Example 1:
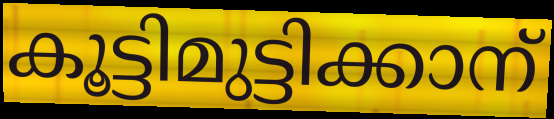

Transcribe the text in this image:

കൂട്ടിമുട്ടിക്കാന്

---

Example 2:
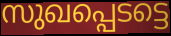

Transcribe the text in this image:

സുഖപ്പെടട്ടെ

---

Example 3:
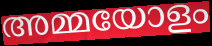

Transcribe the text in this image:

അമ്മയോളം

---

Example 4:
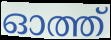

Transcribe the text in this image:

ഓത്ത്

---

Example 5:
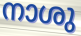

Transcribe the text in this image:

നാശു